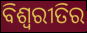
ବିଶ୍ଵରୀତିର